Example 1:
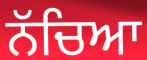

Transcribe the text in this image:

ਨੱਚਿਆ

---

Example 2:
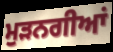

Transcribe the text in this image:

ਮੁੜਨਗੀਆਂ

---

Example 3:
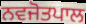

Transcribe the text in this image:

ਨਵਜੋਤਪਾਲ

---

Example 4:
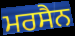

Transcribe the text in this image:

ਮਰਸੈਨ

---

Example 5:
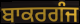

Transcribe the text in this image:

ਬਾਕਰਗੰਜ